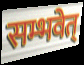
सम्भवेत्